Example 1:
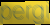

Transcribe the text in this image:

pergi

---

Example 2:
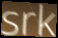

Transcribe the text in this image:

srk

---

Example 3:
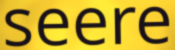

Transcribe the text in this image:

seere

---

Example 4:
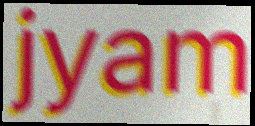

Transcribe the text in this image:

jyam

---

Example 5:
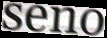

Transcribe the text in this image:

seno